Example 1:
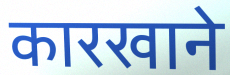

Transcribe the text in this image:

कारखाने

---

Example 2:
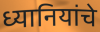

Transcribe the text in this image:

ध्यानियांचे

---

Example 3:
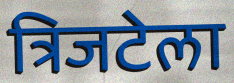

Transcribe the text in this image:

त्रिजटेला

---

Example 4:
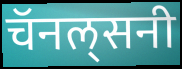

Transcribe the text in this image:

चॅनल्सनी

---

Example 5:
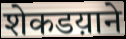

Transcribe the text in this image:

शेकडय़ाने